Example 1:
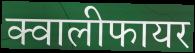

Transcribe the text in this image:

क्वालीफायर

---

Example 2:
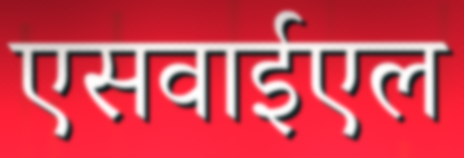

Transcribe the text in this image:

एसवाईएल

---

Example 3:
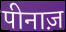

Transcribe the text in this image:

पीनाज़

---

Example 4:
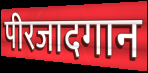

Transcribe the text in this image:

पीरजादगान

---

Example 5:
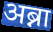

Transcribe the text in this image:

अब्ना